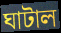
ঘাটাল